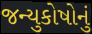
જન્યુકોષોનું